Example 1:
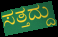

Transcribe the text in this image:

ಸತ್ತದ್ದು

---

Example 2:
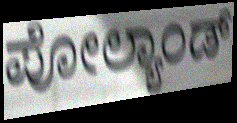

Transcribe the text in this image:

ಪೋಲ್ಯಾಂಡ್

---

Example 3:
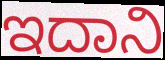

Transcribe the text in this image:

ಇದಾನಿ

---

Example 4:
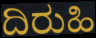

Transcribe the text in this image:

ದಿರುಹಿ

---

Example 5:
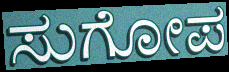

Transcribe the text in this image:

ಸುಗೋಪ